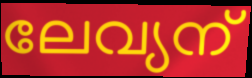
ലേവ്യന്